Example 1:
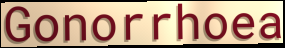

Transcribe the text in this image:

Gonorrhoea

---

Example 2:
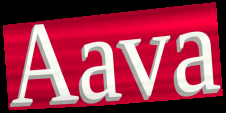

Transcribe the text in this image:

Aava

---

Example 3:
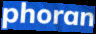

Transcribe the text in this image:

phoran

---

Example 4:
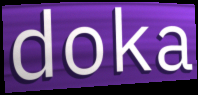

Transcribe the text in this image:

doka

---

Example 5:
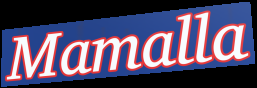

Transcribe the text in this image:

Mamalla